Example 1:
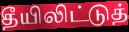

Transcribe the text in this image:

தீயிலிட்டுத்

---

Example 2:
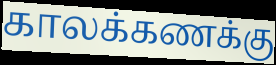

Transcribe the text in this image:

காலக்கணக்கு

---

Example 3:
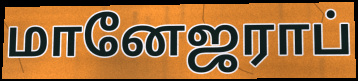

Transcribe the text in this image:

மானேஜராப்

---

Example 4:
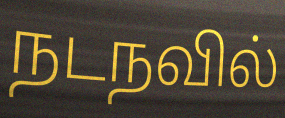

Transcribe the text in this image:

நடநவில்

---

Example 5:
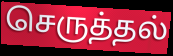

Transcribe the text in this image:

செருத்தல்